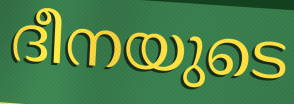
ദീനയുടെ